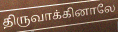
திருவாக்கினாலே